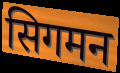
सिगमन